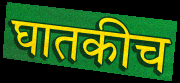
घातकीच